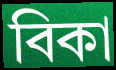
বিকা